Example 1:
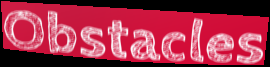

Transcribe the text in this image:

Obstacles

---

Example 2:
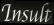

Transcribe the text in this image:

Insult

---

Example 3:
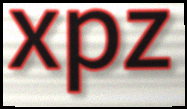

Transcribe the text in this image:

xpz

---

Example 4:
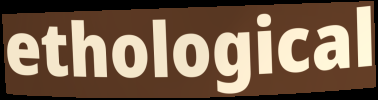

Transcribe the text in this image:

ethological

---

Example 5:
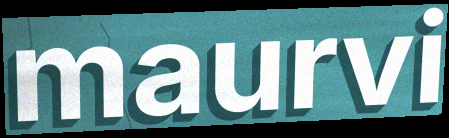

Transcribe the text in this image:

maurvi